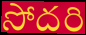
సోదరి